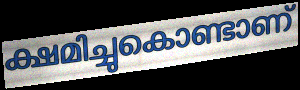
ക്ഷമിച്ചുകൊണ്ടാണ്